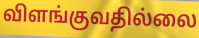
விளங்குவதில்லை